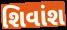
શિવાંશ